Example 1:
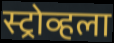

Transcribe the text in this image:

स्ट्रोव्हला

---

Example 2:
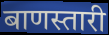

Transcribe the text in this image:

बाणस्तारी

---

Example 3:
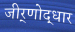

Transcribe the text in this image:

जीर्णोद्धार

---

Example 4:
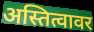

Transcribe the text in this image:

अस्तित्वावर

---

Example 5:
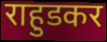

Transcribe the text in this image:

राहुडकर